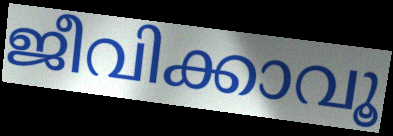
ജീവിക്കാവൂ